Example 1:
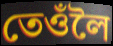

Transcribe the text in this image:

তেওঁলৈ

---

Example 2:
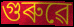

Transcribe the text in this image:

গুৰুৱে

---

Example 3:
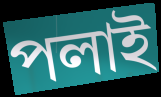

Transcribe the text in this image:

পলাই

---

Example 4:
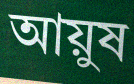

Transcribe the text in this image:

আয়ুষ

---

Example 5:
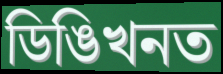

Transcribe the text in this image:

ডিঙিখনত